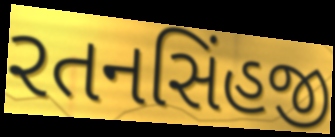
રતનસિંહજી